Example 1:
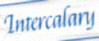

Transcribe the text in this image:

Intercalary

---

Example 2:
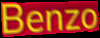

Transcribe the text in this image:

Benzo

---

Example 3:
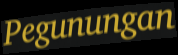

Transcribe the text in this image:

Pegunungan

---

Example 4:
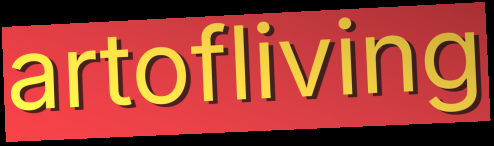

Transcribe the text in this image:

artofliving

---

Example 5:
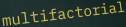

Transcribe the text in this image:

multifactorial